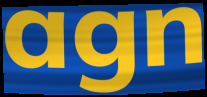
agn